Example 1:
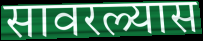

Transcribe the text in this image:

सावरल्यास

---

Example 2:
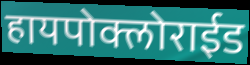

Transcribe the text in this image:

हायपोक्लोराईड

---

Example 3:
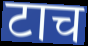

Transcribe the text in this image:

टाच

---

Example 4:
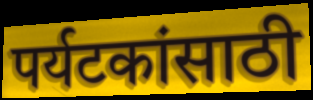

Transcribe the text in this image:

पर्यटकांसाठी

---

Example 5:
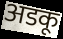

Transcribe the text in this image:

अडकू